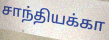
சாந்தியக்கா